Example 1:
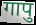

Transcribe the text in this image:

गापु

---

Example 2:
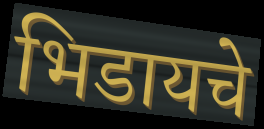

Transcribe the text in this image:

भिडायचे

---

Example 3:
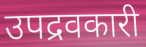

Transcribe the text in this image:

उपद्रवकारी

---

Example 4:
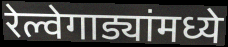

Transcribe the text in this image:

रेल्वेगाड्यांमध्ये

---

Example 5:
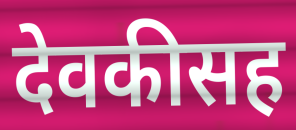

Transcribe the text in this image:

देवकीसह